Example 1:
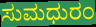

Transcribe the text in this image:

ಸುಮಧುರಂ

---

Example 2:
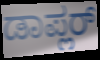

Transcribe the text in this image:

ಡಾಪ್ಲರ್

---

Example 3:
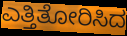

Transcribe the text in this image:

ಎತ್ತಿತೋರಿಸಿದ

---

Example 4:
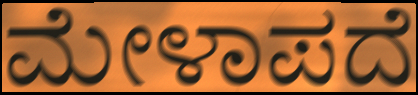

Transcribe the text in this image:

ಮೇಳಾಪದೆ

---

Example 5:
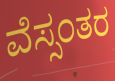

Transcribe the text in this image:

ವೆಸ್ಸಂತರ